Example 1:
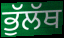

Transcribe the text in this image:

ਭੁੱਲੱਥ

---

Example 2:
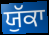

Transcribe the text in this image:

ਯੁੱਕਾ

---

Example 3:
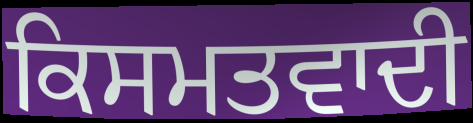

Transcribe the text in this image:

ਕਿਸਮਤਵਾਦੀ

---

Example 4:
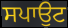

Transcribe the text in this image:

ਸਪਾਉਟ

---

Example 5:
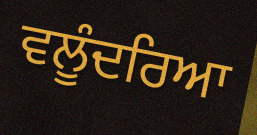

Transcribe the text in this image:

ਵਲੂੰਦਰਿਆ